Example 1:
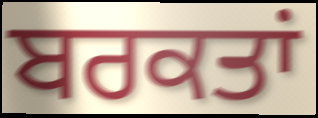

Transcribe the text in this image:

ਬਰਕਤਾਂ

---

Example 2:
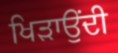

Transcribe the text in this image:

ਖਿੜਾਉਂਦੀ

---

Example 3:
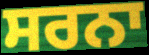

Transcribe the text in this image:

ਸਰਨਾ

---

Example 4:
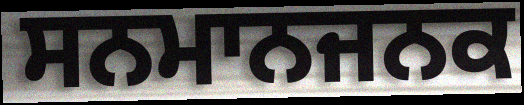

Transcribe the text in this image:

ਸਨਮਾਨਜਨਕ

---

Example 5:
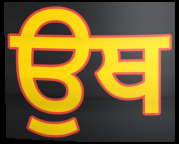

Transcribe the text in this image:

ਉਥ